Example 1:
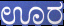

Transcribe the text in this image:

ಊರ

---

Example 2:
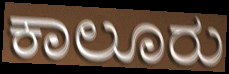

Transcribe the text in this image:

ಕಾಲೂರು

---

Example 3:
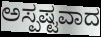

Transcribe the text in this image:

ಅಸ್ಪಷ್ಟವಾದ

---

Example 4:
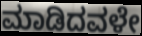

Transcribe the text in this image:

ಮಾಡಿದವಳೇ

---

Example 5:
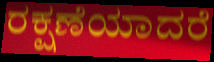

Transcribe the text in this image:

ರಕ್ಷಣೆಯಾದರೆ